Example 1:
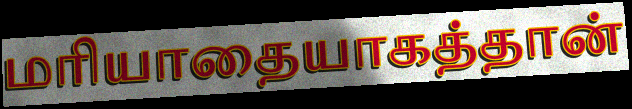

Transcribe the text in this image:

மரியாதையாகத்தான்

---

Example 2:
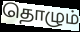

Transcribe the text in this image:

தொழும்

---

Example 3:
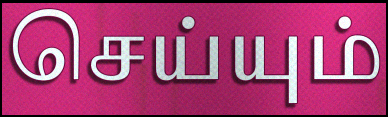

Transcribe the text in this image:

செய்யும்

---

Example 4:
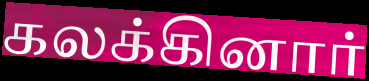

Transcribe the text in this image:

கலக்கினார்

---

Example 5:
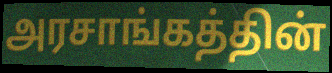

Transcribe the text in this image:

அரசாங்கத்தின்